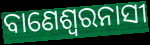
ବାଣେଶ୍ୱରନାସୀ